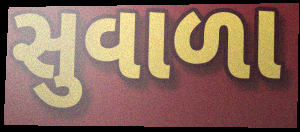
સુવાળા